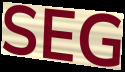
SEG